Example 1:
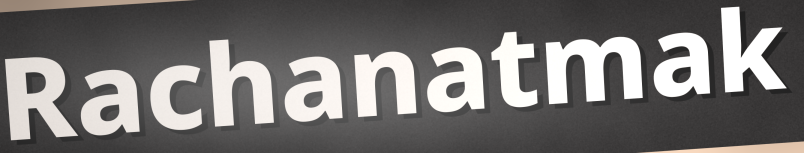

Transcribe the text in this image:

Rachanatmak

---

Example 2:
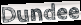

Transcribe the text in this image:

Dundee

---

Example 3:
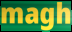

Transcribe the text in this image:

magh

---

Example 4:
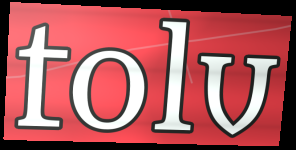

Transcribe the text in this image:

tolu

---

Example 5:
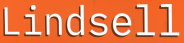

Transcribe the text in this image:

Lindsell